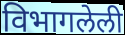
विभागलेली